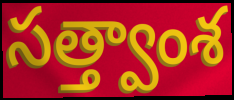
సత్త్వాంశ